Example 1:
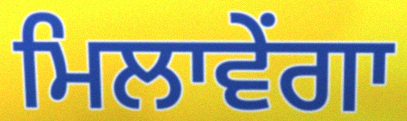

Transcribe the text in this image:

ਮਿਲਾਵੇਂਗਾ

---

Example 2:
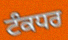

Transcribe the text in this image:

ਟੰਕਧਰ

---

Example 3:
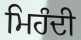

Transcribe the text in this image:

ਮਿਹੰਦੀ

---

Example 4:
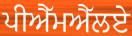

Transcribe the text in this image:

ਪੀਐੱਮਐੱਲਏ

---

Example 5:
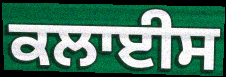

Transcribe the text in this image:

ਕਲਾਈਸ